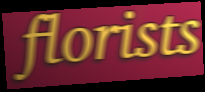
florists